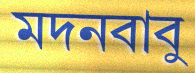
মদনবাবু